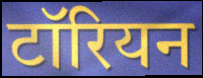
टॉरियन